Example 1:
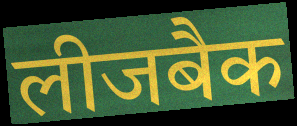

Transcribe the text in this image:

लीजबैक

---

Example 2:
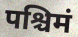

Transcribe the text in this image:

पश्चिमं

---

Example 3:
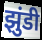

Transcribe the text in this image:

झुंडी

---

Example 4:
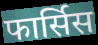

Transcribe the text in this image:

फार्सिस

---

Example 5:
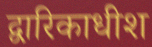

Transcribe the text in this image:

द्वारिकाधीश